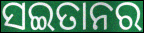
ସଇତାନର